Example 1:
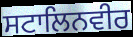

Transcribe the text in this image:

ਸਟਾਲਿਨਵੀਰ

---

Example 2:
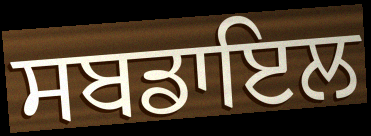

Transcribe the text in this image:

ਸਬਡਾਇਲ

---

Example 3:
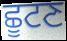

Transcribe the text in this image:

ਛੂਟਣ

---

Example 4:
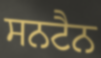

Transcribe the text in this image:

ਸਨਟੈਨ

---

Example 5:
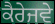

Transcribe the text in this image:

ਕੈਰੇਜਵੇ